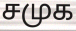
சமுக